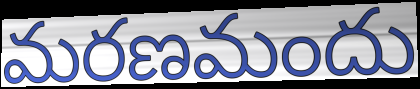
మరణమందు